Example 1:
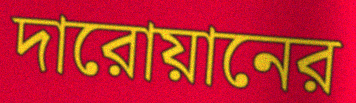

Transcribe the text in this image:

দারোয়ানের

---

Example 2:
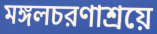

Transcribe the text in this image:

মঙ্গলচরণাশ্রয়ে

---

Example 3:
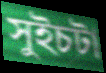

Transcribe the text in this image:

সুইচটা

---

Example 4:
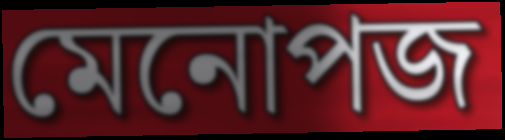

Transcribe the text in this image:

মেনোপজ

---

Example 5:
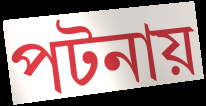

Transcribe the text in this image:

পটনায়